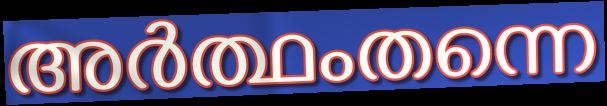
അർത്ഥംതന്നെ